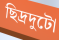
ছিদ্রদুটো